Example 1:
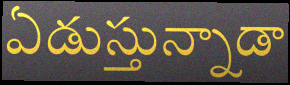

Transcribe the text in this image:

ఏడుస్తున్నాడా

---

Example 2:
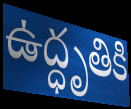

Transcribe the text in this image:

ఉద్ధృతికి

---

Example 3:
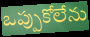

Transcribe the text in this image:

ఒప్పుకోలేను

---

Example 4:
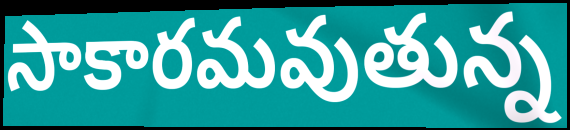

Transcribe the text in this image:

సాకారమవుతున్న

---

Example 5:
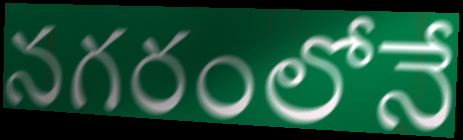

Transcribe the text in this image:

నగరంలోనే